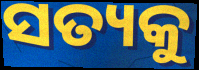
ସତ୍ୟକୁ